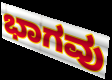
ಭಾಗವು